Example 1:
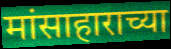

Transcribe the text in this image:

मांसाहाराच्या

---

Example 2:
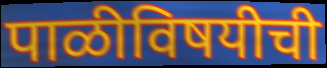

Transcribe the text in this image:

पाळीविषयीची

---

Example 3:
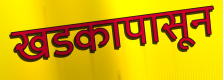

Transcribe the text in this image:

खडकापासून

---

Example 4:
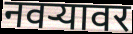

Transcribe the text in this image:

नवर्‍यावर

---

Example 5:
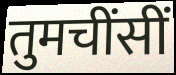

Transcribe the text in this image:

तुमचींसीं